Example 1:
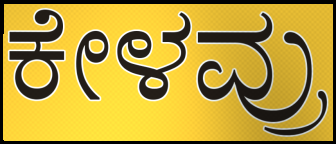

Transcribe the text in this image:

ಕೇಳವ್ರು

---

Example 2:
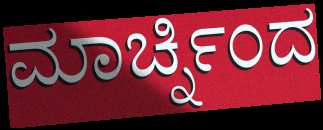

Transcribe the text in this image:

ಮಾರ್ಚ್ನಿಂದ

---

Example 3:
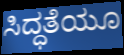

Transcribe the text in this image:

ಸಿದ್ಧತೆಯೂ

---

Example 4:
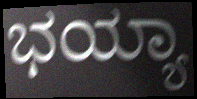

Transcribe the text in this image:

ಭಯ್ಯಾ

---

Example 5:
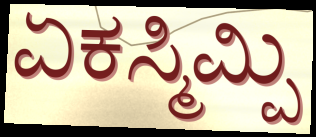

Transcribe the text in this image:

ಏಕಸ್ಮಿಮ್ಪಿ